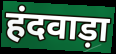
हंदवाड़ा